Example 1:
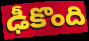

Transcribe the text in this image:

ఢీకొంది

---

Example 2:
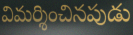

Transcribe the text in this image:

విమర్శించినపుడు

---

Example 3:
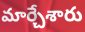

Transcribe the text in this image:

మార్చేశారు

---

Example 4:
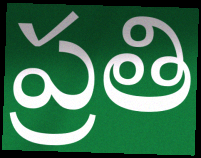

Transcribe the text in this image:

ప్రతి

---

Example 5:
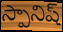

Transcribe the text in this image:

స్పానిష్